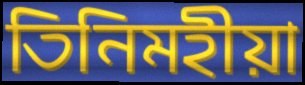
তিনিমহীয়া